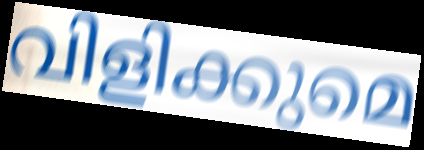
വിളിക്കുമെ